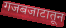
गजबजाटातून